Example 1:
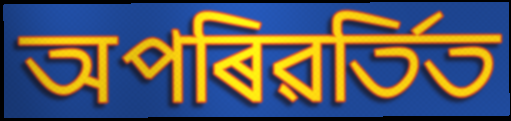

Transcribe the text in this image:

অপৰিৱৰ্তিত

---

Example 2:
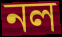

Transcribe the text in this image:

নল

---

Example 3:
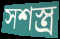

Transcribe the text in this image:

সশস্ত্ৰ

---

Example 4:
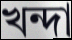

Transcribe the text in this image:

খন্দা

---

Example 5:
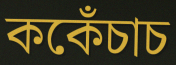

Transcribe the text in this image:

ককেঁচাচ